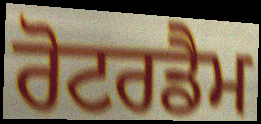
ਰੋਟਰਡੈਮ